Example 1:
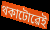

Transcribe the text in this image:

থকাটোৱেই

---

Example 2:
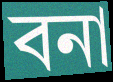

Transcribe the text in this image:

বনা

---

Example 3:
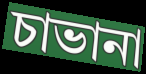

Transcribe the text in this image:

চাভানা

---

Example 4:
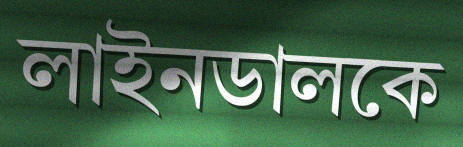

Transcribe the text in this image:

লাইনডালকে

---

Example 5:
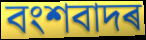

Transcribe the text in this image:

বংশবাদৰ